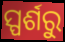
ସ୍ପର୍ଶରୁ